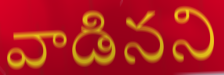
వాడినని